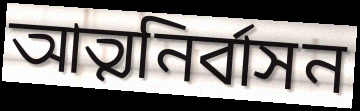
আত্মনির্বাসন